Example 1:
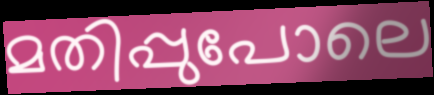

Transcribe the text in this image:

മതിപ്പുപോലെ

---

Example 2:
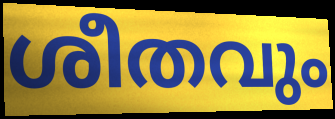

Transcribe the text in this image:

ശീതവും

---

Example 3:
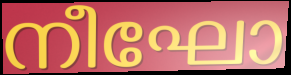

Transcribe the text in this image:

നീഘോ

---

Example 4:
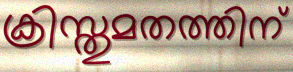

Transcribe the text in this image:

ക്രിസ്തുമതത്തിന്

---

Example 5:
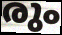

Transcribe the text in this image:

രും